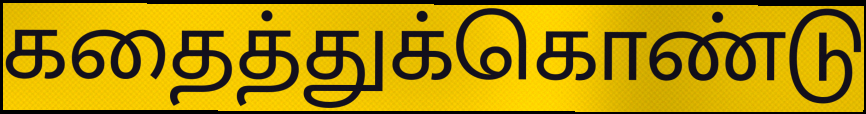
கதைத்துக்கொண்டு